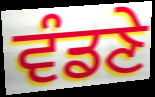
ਵੰਡਣੇ